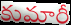
కుమారీ